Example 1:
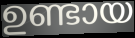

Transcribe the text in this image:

ഉണ്ടായ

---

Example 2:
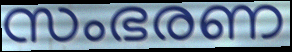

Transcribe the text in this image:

സംഭരണ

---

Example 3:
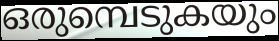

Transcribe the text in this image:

ഒരുമ്പെടുകയും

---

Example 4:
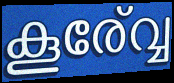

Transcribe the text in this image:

കൂര്വ്വേ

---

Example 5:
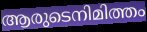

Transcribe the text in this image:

ആരുടെനിമിത്തം